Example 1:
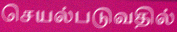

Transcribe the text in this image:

செயல்படுவதில்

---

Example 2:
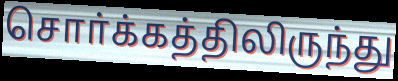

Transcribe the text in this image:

சொர்க்கத்திலிருந்து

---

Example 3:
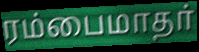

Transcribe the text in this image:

ரம்பைமாதர்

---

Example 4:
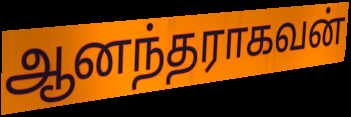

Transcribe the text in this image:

ஆனந்தராகவன்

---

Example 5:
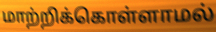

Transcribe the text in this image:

மாற்றிக்கொள்ளாமல்